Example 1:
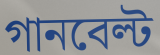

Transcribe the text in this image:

গানবেল্ট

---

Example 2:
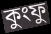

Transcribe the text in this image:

কুংফু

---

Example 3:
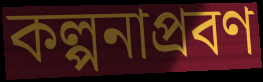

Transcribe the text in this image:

কল্পনাপ্রবণ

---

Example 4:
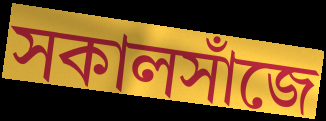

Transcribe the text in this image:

সকালসাঁজে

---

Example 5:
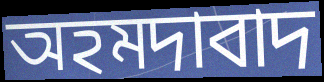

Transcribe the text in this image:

অহমদাবাদ